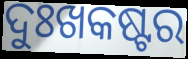
ଦୁଃଖକଷ୍ଟର